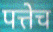
पत्तेच